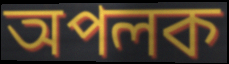
অপলক